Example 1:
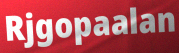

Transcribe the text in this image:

Rjgopaalan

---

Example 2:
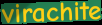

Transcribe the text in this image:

virachite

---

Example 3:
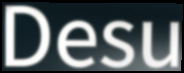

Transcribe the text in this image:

Desu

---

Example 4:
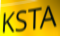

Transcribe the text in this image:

KSTA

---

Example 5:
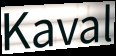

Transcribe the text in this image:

Kaval